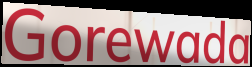
Gorewada